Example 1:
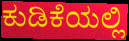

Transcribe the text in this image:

ಕುಡಿಕೆಯಲ್ಲಿ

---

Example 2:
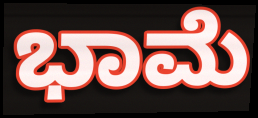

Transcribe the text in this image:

ಭಾಮೆ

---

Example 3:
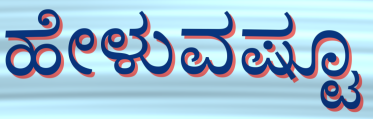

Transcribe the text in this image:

ಹೇಳುವಷ್ಟೂ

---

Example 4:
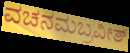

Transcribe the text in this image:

ವಚನಮಬ್ರವೀತ್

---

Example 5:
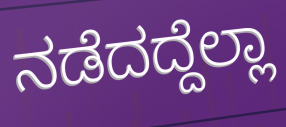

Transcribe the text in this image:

ನಡೆದದ್ದೆಲ್ಲಾ